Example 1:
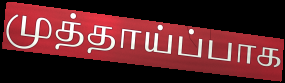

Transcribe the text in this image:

முத்தாய்ப்பாக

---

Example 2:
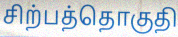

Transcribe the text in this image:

சிற்பத்தொகுதி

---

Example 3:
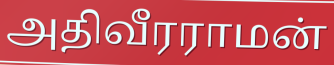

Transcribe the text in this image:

அதிவீரராமன்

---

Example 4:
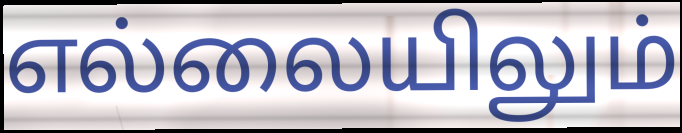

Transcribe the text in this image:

எல்லையிலும்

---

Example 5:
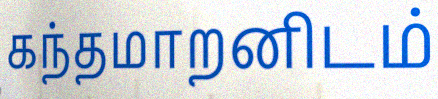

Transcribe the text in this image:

கந்தமாறனிடம்